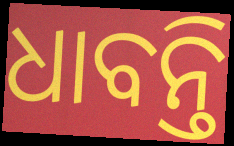
ଧାବନ୍ତି